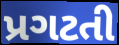
પ્રગટતી